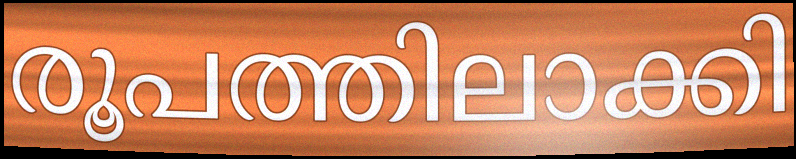
രൂപത്തിലാക്കി